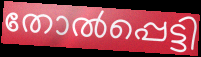
തോൽപ്പെട്ടി